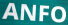
ANFO